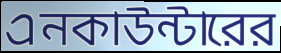
এনকাউন্টারের